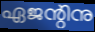
ഏജന്റിനു